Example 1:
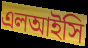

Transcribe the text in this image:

এলআইসি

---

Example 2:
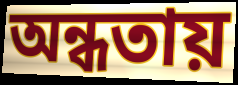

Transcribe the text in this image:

অন্ধতায়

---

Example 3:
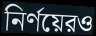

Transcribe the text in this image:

নির্ণয়েরও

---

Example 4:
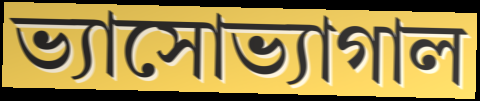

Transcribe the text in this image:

ভ্যাসোভ্যাগাল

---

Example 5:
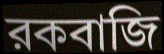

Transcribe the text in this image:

রকবাজি